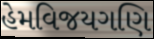
હેમવિજયગણિ